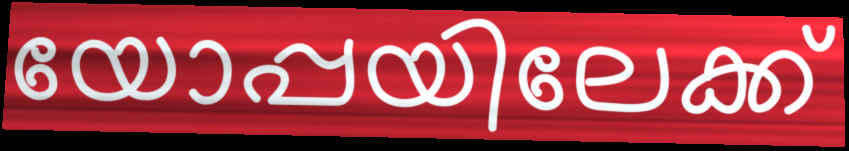
യോപ്പയിലേക്ക്